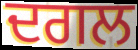
ਦਗਲ